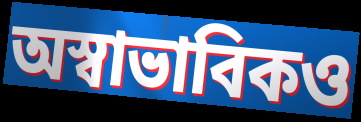
অস্বাভাবিকও